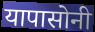
यापासोनी